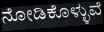
ನೋಡಿಕೊಳ್ಳುವೆ